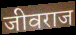
जीवराज